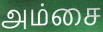
அம்சை